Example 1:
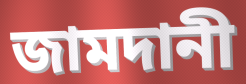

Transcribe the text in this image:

জামদানী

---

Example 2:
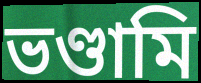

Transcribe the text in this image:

ভণ্ডামি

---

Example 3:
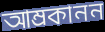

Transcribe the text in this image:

আম্রকানন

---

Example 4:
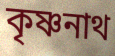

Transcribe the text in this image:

কৃষ্ণনাথ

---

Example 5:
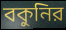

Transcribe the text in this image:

বকুনির